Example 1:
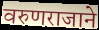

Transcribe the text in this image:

वरुणराजाने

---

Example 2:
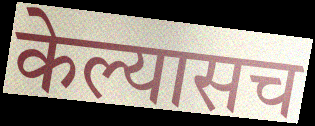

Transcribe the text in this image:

केल्यासच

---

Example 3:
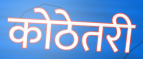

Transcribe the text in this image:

कोठेतरी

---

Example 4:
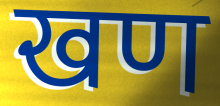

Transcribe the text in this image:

खण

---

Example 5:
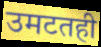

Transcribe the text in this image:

उमटतही